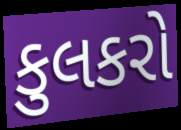
કુલકરો